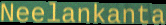
Neelankanta